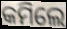
କମିଲେ